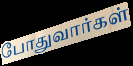
போதுவார்கள்